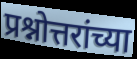
प्रश्नोत्तरांच्या